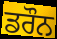
ਡਰੌਨ